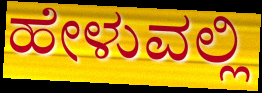
ಹೇಳುವಲ್ಲಿ